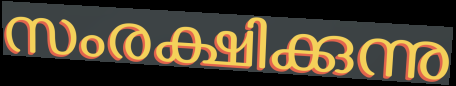
സംരക്ഷിക്കുന്നു